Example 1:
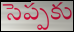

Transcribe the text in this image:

సెప్పకు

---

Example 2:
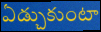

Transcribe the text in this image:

ఏడ్చుకుంటా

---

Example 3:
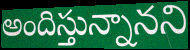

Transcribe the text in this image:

అందిస్తున్నానని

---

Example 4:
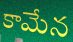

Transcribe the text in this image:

కామేన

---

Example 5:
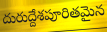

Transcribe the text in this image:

దురుద్దేశపూరితమైన